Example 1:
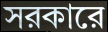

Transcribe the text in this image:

সরকারে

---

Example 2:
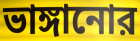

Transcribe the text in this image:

ভাঙ্গানোর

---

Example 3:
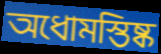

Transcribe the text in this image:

অধোমস্তিষ্ক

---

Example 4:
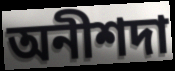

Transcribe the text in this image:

অনীশদা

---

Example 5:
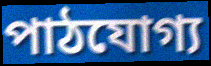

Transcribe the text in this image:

পাঠযোগ্য